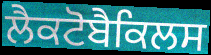
ਲੈਕਟੋਬੈਕਿਲਸ